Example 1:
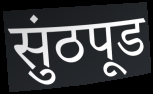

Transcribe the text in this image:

सुंठपूड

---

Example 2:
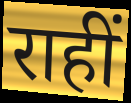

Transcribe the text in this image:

राहीं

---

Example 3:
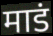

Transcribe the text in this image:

माडं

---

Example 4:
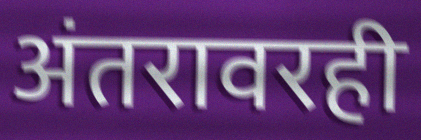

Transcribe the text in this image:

अंतरावरही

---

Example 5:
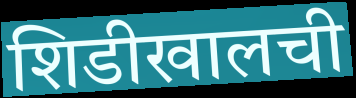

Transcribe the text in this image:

शिडीखालची